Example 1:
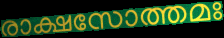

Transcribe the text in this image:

രാക്ഷസോത്തമഃ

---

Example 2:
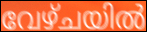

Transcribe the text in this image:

വേഴ്ചയിൽ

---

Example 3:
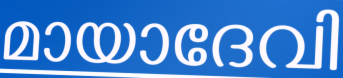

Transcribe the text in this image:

മായാദേവി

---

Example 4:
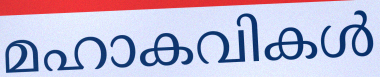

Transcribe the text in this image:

മഹാകവികൾ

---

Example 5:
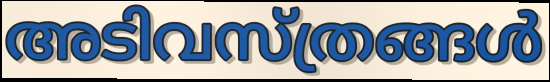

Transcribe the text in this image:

അടിവസ്ത്രങ്ങൾ